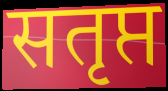
सतृप्त